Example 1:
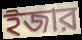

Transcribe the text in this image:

ইজার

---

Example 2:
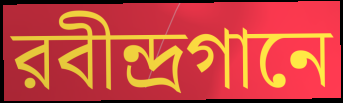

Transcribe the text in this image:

রবীন্দ্রগানে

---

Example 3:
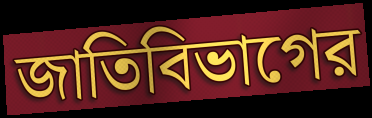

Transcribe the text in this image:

জাতিবিভাগের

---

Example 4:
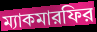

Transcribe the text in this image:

ম্যাকমারফির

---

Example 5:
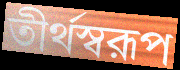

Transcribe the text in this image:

তীর্থস্বরূপ